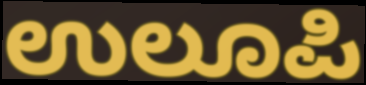
ಉಲೂಪಿ